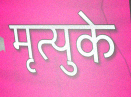
मृत्युके